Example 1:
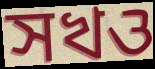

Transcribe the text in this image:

সখও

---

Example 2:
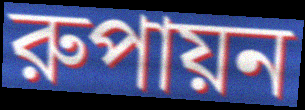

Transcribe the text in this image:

রুপায়ন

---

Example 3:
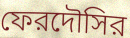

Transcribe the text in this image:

ফেরদৌসির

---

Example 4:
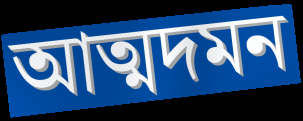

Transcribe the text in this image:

আত্মদমন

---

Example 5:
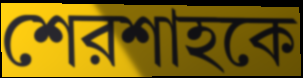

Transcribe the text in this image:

শেরশাহকে